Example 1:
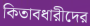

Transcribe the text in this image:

কিতাবধারীদের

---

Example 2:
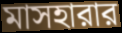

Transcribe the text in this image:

মাসহারার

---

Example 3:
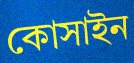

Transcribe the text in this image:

কোসাইন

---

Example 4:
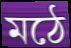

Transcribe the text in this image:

মঠে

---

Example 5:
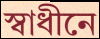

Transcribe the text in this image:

স্বাধীনে